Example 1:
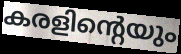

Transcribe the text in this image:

കരളിന്റെയും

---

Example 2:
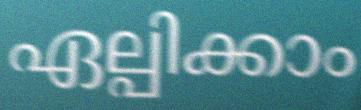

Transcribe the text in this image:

ഏല്പിക്കാം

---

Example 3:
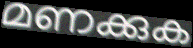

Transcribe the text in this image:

മണക്കുക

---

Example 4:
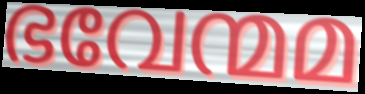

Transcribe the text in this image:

ഭവേന്മമ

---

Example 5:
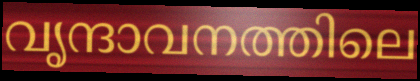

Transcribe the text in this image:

വൃന്ദാവനത്തിലെ